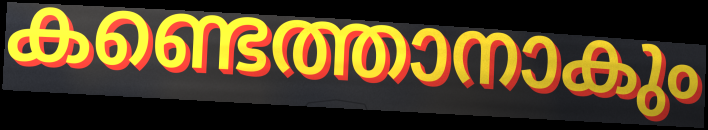
കണ്ടെത്താനാകും